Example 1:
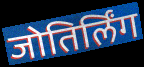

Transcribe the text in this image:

जोतिर्लिंग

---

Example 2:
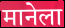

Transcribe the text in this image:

मानेला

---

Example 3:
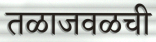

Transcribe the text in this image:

तळाजवळची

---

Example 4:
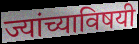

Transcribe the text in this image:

ज्यांच्याविषयी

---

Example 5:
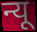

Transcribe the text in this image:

न्यू